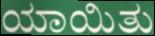
ಯಾಯಿತು